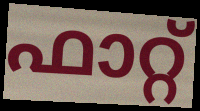
ഫാറ്റ്